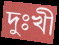
দুঃখী